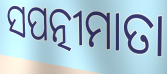
ସପତ୍ନୀମାତା